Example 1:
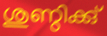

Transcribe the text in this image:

ശുണ്ഠിക്കു്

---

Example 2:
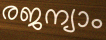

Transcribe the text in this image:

രജന്യാം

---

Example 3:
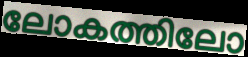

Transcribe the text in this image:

ലോകത്തിലോ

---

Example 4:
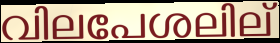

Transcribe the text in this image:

വിലപേശലില്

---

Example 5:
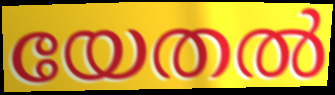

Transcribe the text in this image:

യേതൽ